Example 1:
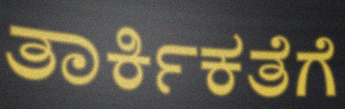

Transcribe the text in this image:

ತಾರ್ಕಿಕತೆಗೆ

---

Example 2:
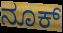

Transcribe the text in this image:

ನೂಕ್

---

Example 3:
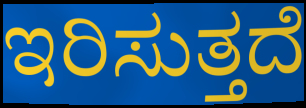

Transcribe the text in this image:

ಇರಿಸುತ್ತದೆ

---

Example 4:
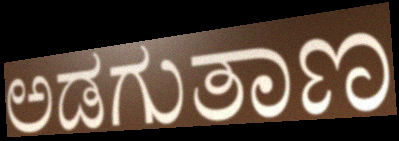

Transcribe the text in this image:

ಅಡಗುತಾಣ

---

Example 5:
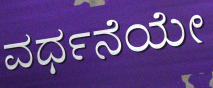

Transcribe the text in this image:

ವರ್ಧನೆಯೇ